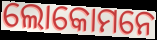
ଲୋକୋମନେ